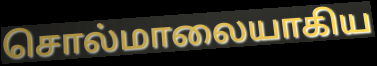
சொல்மாலையாகிய